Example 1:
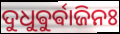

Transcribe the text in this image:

ଦୁଧୁଵୁର୍ଵାଜିନଃ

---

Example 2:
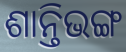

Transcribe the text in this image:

ଶାନ୍ତିଭଙ୍ଗ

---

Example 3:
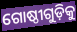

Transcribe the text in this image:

ଗୋଷ୍ଠୀଗୁଡ଼ିକୁ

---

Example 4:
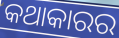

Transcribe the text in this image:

କଥାକାରର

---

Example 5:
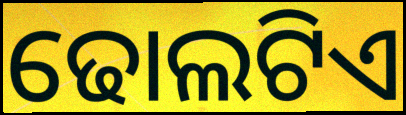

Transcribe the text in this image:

ଢୋଲଟିଏ